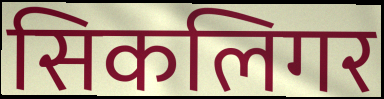
सिकलिगर